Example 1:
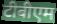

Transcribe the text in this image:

टीबीएम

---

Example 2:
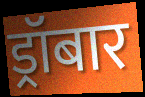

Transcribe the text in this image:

ड्रॉबार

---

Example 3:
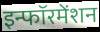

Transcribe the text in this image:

इन्फॉरमेंशन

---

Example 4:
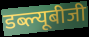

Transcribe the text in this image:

डब्ल्यूबीजी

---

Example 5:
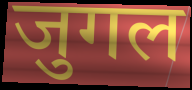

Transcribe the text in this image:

जुगल